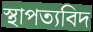
স্থাপত্যবিদ